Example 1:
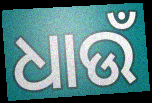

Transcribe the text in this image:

ଧାଉଁ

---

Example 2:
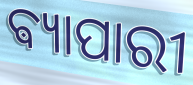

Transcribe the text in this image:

ଵ୍ୟାପାରୀ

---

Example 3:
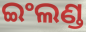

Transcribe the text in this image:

ଇଂଲଣ୍ଡ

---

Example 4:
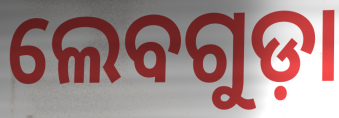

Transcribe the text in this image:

ଲେବଗୁଡ଼ା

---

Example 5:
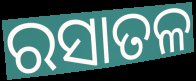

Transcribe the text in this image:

ରସାତଳ